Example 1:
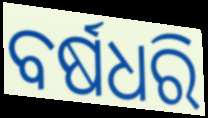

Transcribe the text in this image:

ବର୍ଷଧରି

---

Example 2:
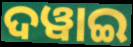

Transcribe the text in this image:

ଦୱାଇ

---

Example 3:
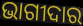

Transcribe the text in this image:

ଭାଗୀଦାର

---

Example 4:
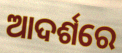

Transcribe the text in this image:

ଆଦର୍ଶରେ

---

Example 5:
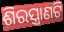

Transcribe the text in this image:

ଶିରସ୍ତ୍ରାଣଟି